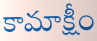
కామాక్షీం